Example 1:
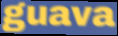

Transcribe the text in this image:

guava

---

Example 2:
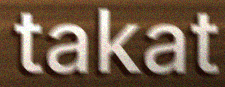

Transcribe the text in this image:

takat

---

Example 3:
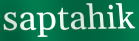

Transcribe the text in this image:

saptahik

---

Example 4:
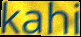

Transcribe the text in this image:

kahi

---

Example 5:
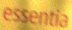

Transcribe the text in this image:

essentia